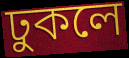
ঢুকলে